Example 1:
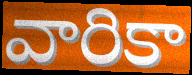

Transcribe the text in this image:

వారికా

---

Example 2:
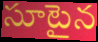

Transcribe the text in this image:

సూటైన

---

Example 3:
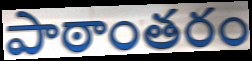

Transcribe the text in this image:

పాఠాంతరం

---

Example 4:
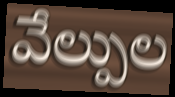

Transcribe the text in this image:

వేల్పుల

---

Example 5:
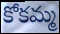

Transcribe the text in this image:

కోకమ్మ